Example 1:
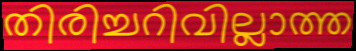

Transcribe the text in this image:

തിരിച്ചറിവില്ലാത്ത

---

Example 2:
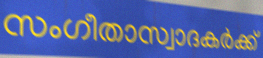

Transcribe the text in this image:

സംഗീതാസ്വാദകർക്ക്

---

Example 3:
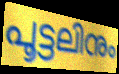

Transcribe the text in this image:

പൂട്ടലിനും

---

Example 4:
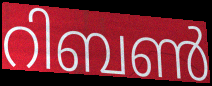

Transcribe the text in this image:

റിബൺ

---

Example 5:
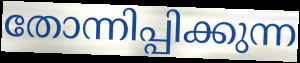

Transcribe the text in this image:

തോന്നിപ്പിക്കുന്ന